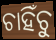
ଚାହିଁଚୁ